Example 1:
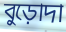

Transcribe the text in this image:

বুড়োদা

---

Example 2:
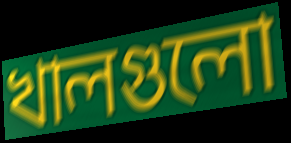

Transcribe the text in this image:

খালগুলো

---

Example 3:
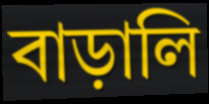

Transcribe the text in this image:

বাড়ালি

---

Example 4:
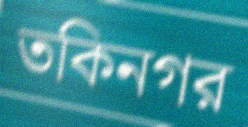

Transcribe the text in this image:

তকিনগর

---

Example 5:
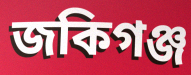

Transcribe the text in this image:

জকিগঞ্জ